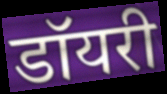
डॉयरी